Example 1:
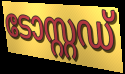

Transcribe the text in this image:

ടോസ്റ്റഡ്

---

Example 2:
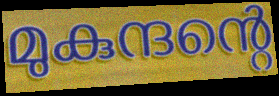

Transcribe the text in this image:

മുകുന്ദന്റെ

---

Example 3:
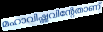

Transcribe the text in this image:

മഹാവിഷ്ണുവിന്റേതാണ്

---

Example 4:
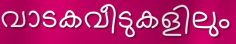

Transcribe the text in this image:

വാടകവീടുകളിലും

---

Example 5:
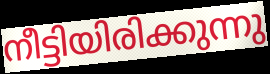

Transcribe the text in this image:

നീട്ടിയിരിക്കുന്നു